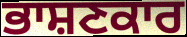
ਭਾਸ਼ਣਕਾਰ